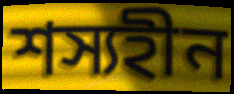
শস্যহীন